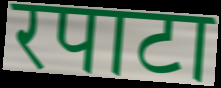
रपाटा